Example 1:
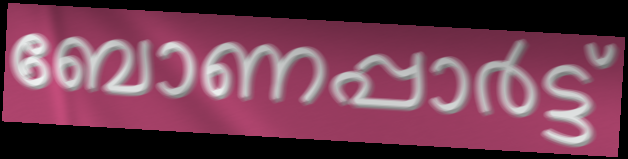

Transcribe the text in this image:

ബോണപ്പാർട്ട്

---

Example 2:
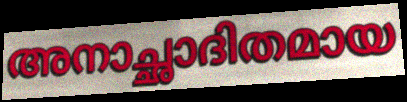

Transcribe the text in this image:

അനാച്ഛാദിതമായ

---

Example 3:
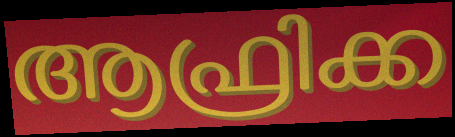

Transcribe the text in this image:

ആഫ്രിക്ക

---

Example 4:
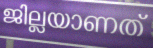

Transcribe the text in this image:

ജില്ലയാണത്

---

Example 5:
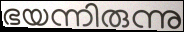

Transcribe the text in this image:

ഭയന്നിരുന്നു